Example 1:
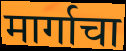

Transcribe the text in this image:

मार्गाचा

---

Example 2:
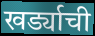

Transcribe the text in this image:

खर्ड्याची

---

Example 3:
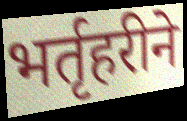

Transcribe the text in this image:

भर्तृहरीने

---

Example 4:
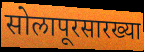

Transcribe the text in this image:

सोलापूरसारख्या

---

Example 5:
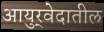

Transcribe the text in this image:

आयुर्वेदातील